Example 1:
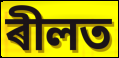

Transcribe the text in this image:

ৰীলত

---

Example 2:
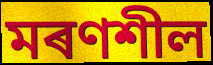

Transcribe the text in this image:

মৰণশীল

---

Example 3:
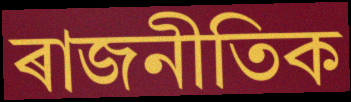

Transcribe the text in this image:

ৰাজনীতিক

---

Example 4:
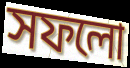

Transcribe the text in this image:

সফলো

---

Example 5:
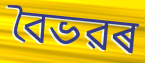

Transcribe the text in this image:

বৈভৱৰ